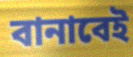
বানাবেই